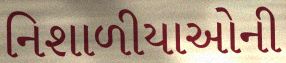
નિશાળીયાઓની